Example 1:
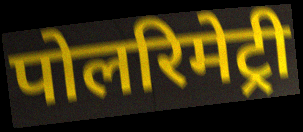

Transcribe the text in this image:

पोलरिमेट्री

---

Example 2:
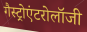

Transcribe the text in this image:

गैस्ट्रोएंटरोलॉजी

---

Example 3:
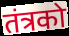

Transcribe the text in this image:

तंत्रको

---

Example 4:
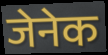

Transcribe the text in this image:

जेनेक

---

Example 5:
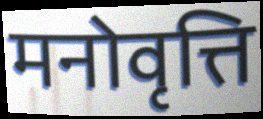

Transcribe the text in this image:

मनोवृत्ति